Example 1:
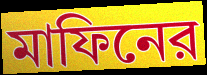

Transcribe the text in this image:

মাফিনের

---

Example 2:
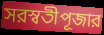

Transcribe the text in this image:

সরস্বতীপূজার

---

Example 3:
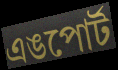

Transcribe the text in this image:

এঙপোর্ট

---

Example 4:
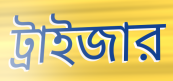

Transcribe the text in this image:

ট্রাইজার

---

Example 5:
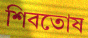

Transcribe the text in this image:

শিবতোষ